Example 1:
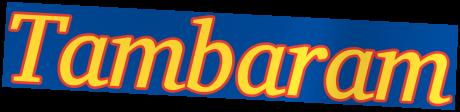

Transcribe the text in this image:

Tambaram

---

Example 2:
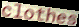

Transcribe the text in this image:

clothes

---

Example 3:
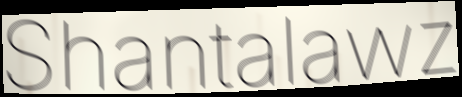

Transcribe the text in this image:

Shantalawz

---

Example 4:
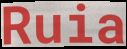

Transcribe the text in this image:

Ruia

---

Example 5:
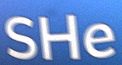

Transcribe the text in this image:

SHe